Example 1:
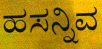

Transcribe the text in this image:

ಹಸನ್ನಿವ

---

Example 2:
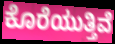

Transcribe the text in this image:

ಕೊರೆಯುತ್ತಿವೆ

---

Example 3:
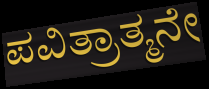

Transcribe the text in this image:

ಪವಿತ್ರಾತ್ಮನೇ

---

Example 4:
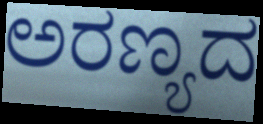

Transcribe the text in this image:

ಅರಣ್ಯದ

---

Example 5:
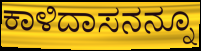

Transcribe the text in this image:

ಕಾಳಿದಾಸನನ್ನೂ